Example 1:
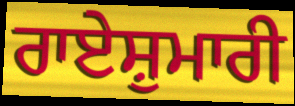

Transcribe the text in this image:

ਰਾਏਸ਼ੁਮਾਰੀ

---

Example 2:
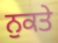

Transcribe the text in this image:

ਨੁਕਤੇ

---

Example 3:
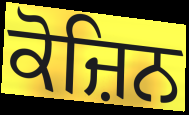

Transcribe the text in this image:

ਕੋਜ਼ਿਨ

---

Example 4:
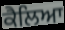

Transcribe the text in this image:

ਕੈਲਿਆ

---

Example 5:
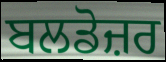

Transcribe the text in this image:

ਬਲਡੋਜ਼ਰ